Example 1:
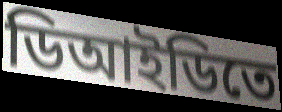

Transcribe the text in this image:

ডিআইডিতে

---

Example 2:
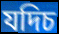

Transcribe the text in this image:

যদিচ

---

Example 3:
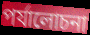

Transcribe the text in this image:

পর্যালোচনা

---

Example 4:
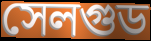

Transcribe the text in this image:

সেলগুড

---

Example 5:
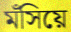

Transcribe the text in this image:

মঁসিয়ে